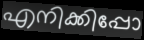
എനിക്കിപ്പോ